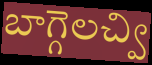
బాగ్గెలచ్వి